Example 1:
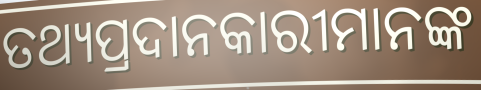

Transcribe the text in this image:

ତଥ୍ୟପ୍ରଦାନକାରୀମାନଙ୍କ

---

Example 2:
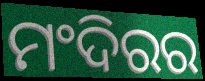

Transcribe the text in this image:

ମଂଦିରର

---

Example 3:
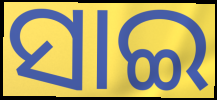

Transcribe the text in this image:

ସାଇ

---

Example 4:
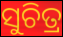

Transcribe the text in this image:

ସୁଚିତ୍ର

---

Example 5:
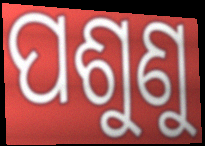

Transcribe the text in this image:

ପଶୁଣୁ